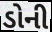
ડોની